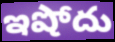
ఇషోదు